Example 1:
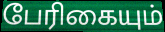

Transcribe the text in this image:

பேரிகையும்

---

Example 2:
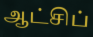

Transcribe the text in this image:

ஆட்சிப்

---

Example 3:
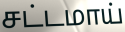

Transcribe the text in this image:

சட்டமாய்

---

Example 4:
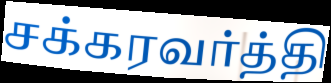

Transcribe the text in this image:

சக்கரவர்த்தி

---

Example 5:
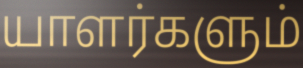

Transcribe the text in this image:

யாளர்களும்